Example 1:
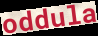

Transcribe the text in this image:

oddula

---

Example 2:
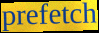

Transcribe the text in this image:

prefetch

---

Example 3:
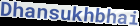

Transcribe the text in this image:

Dhansukhbhai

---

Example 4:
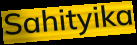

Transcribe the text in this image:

Sahityika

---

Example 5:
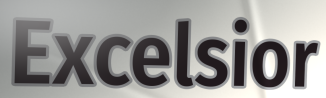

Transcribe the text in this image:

Excelsior